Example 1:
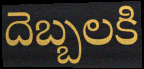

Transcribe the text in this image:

దెబ్బలకి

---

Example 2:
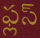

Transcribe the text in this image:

ఫ్లస్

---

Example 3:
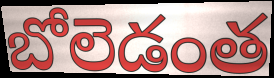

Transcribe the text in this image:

బోలెడంత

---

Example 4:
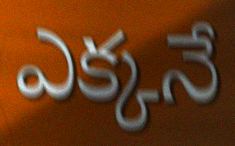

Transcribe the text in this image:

ఎక్కనే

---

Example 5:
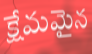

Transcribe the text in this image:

క్షేమమైన